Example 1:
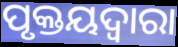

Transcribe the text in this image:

ପୃକ୍ତୟଦ୍ଵାରା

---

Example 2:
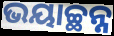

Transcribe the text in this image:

ଭୟାଚ୍ଛନ୍ନ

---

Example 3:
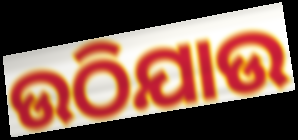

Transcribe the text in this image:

ଉଠିଯାଉ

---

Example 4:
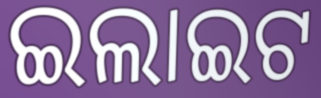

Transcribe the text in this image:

ଇଲାଇଟ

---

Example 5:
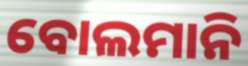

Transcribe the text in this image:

ବୋଲମାନି